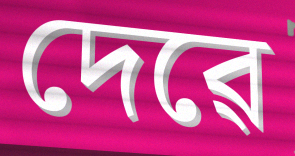
দেৱে